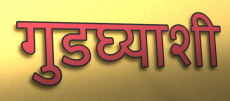
गुडघ्याशी